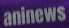
aninews